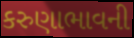
કરુણાભાવની